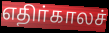
எதிர்காலச்